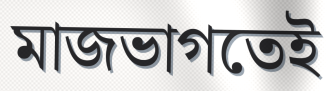
মাজভাগতেই